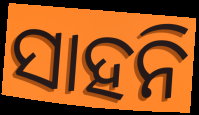
ସାହନି